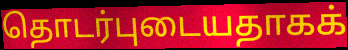
தொடர்புடையதாகக்